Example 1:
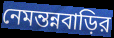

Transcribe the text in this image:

নেমন্তন্নবাড়ির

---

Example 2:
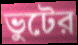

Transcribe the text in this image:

ভুটের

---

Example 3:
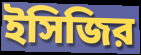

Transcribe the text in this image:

ইসিজির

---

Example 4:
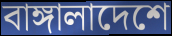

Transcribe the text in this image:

বাঙ্গালাদেশে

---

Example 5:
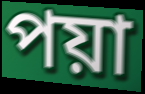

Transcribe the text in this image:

পয়া